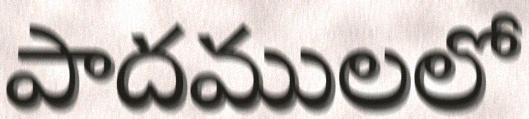
పాదములలో